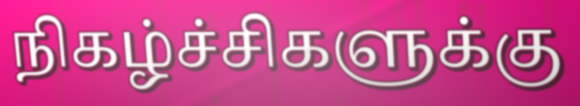
நிகழ்ச்சிகளுக்கு